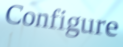
Configure